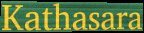
Kathasara